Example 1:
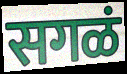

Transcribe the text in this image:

सगळं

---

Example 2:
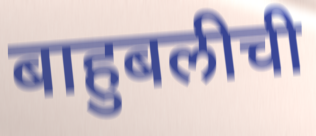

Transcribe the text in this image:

बाहुबलीची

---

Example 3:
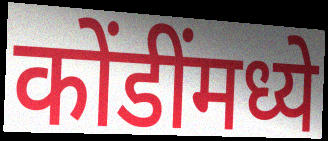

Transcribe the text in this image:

कोंडींमध्ये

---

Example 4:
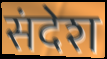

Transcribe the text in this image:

संदेश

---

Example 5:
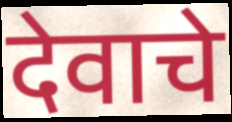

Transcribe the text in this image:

देवाचे